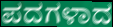
ಪದಗಳಾದ